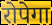
रोपेगा